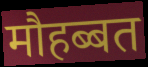
मौहब्बत